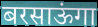
बरसाऊंगा